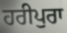
ਹਰੀਪੁਰਾ